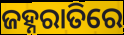
ଜହ୍ନରାତିରେ